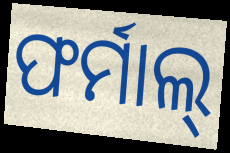
ଫର୍ମାଲ୍